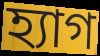
হ্যাগ